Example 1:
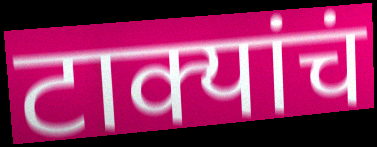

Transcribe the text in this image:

टाक्यांचं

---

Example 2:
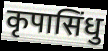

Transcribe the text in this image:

कृपासिंधु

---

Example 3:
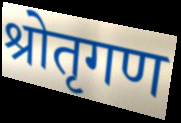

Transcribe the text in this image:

श्रोतृगण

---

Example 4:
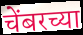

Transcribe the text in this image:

चेंबरच्या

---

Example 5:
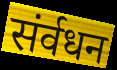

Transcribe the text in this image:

संर्वधन